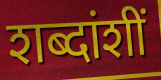
शब्दांशीं